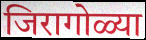
जिरागोळ्या